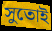
সুতোই